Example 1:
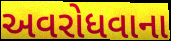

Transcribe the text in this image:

અવરોધવાના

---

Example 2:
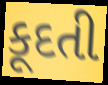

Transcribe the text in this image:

કૂદતી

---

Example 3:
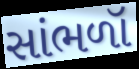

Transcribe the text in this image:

સાંભળૉ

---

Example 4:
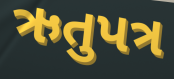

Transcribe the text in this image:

ઋતુપત્ર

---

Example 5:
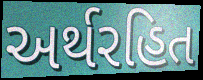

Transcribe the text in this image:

અર્થરહિત